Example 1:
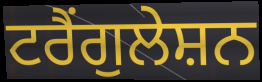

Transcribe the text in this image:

ਟਰੈਂਗੁਲੇਸ਼ਨ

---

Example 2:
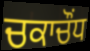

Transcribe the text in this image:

ਚਕਾਚੌਂਧ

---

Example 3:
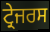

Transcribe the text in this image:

ਟ੍ਰੇਜਰਸ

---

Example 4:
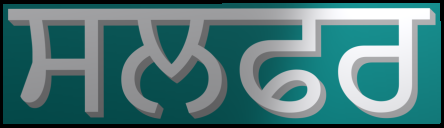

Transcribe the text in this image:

ਸਲਫਰ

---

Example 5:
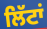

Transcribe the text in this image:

ਲਿੱਟਾਂ